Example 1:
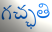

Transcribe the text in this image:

గచ్ఛతి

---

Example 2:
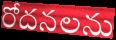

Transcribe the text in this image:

రోదనలను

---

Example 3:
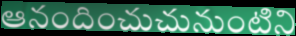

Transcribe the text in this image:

ఆనందించుచునుంటిని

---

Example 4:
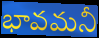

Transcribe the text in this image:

భావమనీ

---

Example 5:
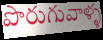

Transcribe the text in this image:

పొరుగువాళ్ళ